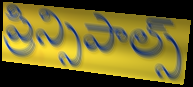
ప్రిన్సిపాల్స్